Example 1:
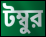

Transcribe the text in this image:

টম্বুর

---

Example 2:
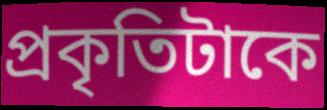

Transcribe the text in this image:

প্রকৃতিটাকে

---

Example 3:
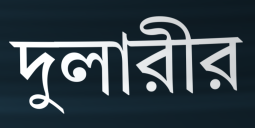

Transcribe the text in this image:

দুলারীর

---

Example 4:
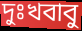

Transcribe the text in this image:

দুঃখবাবু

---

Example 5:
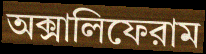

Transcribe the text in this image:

অক্সালিফেরাম